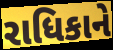
રાધિકાને